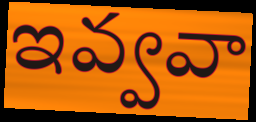
ఇవ్వవా